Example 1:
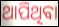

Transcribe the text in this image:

ଥାପିଥିବା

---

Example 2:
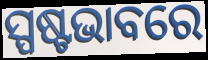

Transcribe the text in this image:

ସ୍ପଷ୍ଟଭାବରେ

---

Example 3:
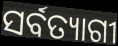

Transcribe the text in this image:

ସର୍ବତ୍ୟାଗୀ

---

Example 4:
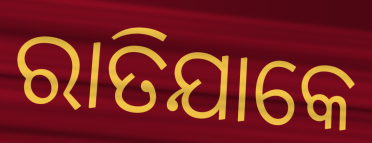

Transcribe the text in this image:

ରାତିଯାକେ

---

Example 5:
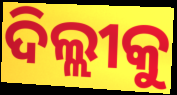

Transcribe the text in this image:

ଦିଲ୍ଲୀକୁ